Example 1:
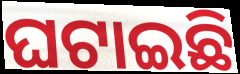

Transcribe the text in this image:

ଘଟାଇଛି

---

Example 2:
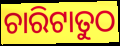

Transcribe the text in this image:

ଚାରିଟାତୁଠ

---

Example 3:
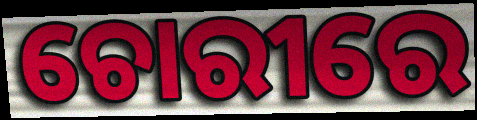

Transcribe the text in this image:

ଚୋରୀରେ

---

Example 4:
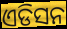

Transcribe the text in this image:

ଏଡିସନ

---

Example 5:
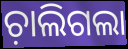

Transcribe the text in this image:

ଚ଼ାଲିଗଲା